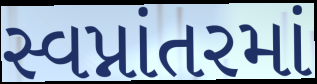
સ્વપ્નાંતરમાં